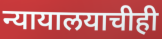
न्यायालयाचीही